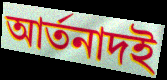
আর্তনাদই